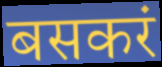
बसकरं